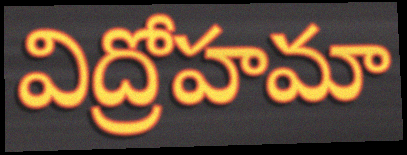
విద్రోహమా